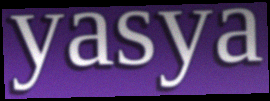
yasya